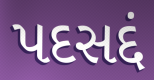
પદસદ્દં